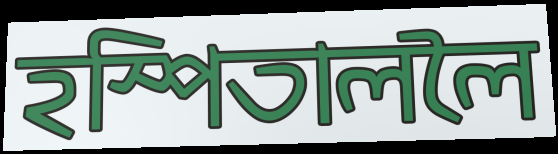
হস্পিতাললৈ